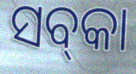
ସବ୍‌କା